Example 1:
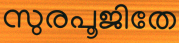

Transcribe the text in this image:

സുരപൂജിതേ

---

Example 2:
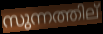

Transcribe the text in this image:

സുന്നത്തില്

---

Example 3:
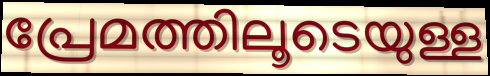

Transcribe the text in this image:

പ്രേമത്തിലൂടെയുള്ള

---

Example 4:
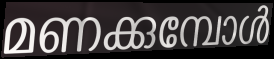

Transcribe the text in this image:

മണക്കുമ്പോൾ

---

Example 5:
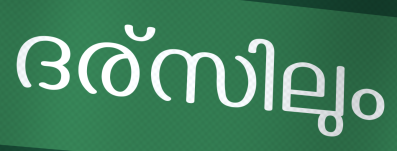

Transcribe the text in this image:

ദര്സിലും